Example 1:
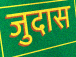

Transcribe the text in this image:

जुदास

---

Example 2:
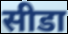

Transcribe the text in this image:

सीडा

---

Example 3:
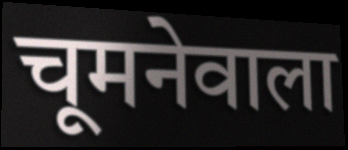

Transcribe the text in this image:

चूमनेवाला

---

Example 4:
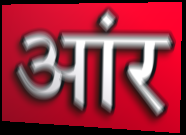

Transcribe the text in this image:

आंर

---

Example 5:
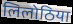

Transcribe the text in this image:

लिलोठिया